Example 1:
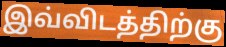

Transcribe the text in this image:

இவ்விடத்திற்கு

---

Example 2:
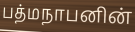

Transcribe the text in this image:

பத்மநாபனின்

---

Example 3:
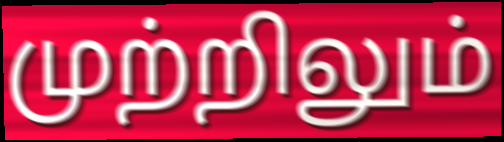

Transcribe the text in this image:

முற்றிலும்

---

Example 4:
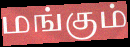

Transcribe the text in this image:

மங்கும்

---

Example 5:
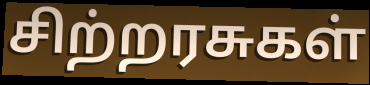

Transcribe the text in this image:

சிற்றரசுகள்